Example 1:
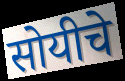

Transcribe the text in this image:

सोयीचे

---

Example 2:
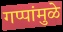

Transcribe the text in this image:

गप्पांमुळे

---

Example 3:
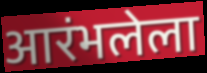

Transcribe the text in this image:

आरंभलेला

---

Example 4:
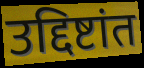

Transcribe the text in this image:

उद्दिष्टांत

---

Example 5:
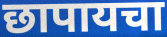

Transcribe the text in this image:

छापायचा